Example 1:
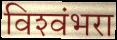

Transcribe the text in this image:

विश्वंभरा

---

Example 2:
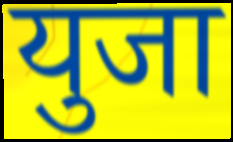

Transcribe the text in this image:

युजा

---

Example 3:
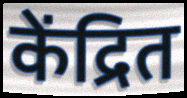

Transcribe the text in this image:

केंद्रित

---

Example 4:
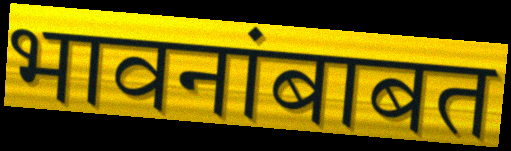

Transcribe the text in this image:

भावनांबाबत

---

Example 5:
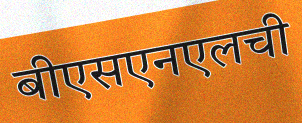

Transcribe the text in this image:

बीएसएनएलची